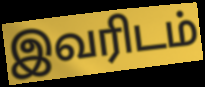
இவரிடம்